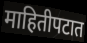
माहितीपटात